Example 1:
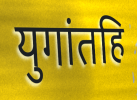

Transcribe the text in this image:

युगांतहि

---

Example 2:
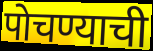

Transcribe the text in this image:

पोचण्याची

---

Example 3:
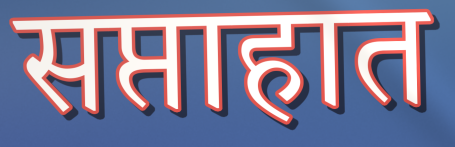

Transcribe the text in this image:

सप्ताहात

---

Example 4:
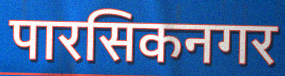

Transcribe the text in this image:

पारसिकनगर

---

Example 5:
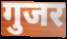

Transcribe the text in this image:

गुजर